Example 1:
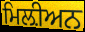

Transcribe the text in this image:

ਮਿਲ਼ੀਅਨ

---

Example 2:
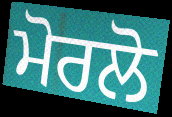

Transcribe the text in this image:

ਮੋਰਲੋ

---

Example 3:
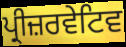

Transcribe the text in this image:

ਪ੍ਰੀਜ਼ਰਵੇਟਿਵ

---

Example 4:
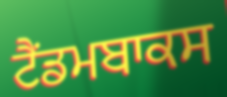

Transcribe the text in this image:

ਟੈਂਡਮਬਾਕਸ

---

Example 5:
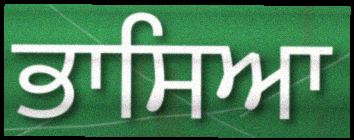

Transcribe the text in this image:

ਭਾਸਿਆ